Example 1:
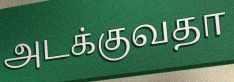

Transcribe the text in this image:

அடக்குவதா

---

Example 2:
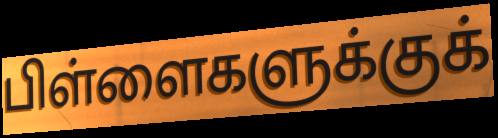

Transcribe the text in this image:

பிள்ளைகளுக்குக்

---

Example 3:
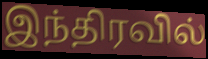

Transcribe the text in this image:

இந்திரவில்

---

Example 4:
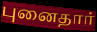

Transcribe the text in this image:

புனைதார்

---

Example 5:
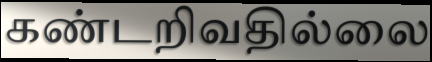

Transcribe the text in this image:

கண்டறிவதில்லை